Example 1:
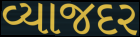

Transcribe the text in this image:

વ્યાજદર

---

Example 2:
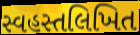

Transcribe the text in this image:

સ્વહસ્તલિખિત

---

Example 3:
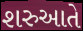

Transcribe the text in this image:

શરુઆતે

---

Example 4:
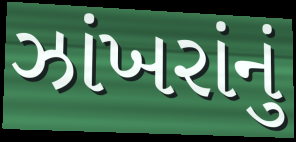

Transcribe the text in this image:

ઝાંખરાંનું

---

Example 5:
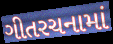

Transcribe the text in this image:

ગીતરચનામાં